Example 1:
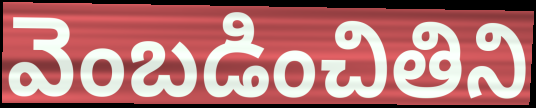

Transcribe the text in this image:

వెంబడించితిని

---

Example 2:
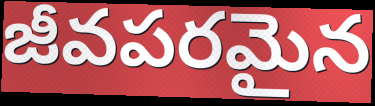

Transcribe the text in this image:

జీవపరమైన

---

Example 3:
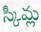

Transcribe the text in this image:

స్కీమ్ల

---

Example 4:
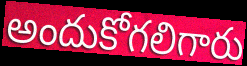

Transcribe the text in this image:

అందుకోగలిగారు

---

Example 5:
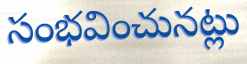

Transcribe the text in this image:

సంభవించునట్లు